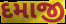
દમાજી